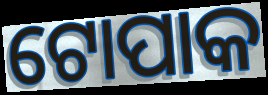
ଟୋପାକ